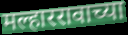
मल्हाररावाच्या